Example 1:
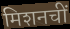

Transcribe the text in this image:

मिशनचीं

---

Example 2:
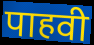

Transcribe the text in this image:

पाहवी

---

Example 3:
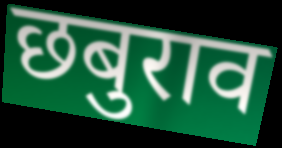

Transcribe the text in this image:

छबुराव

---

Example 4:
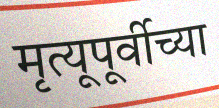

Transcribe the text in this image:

मृत्यूपूर्वीच्या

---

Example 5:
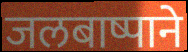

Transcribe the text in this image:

जलबाष्पाने